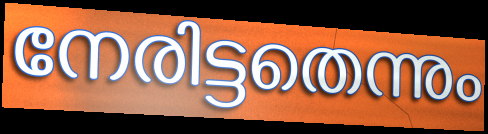
നേരിട്ടതെന്നും